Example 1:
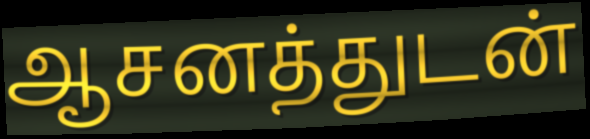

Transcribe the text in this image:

ஆசனத்துடன்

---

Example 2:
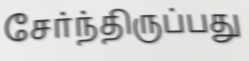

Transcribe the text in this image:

சேர்ந்திருப்பது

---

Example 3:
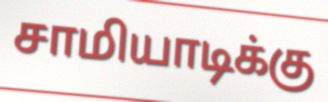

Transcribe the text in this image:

சாமியாடிக்கு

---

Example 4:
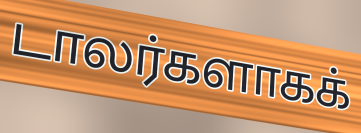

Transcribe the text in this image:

டாலர்களாகக்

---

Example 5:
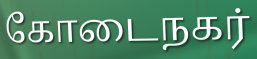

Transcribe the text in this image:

கோடைநகர்